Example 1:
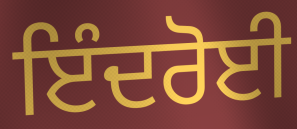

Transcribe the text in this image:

ਇੰਦਰੋਈ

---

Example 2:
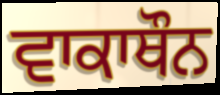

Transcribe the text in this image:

ਵਾਕਾਥੌਨ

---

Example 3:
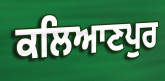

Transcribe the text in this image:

ਕਲਿਆਣਪੁਰ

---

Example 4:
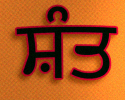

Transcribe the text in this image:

ਸ਼ੰਤ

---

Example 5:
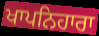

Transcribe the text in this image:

ਖਾਪਨਿਹਾਰਾ